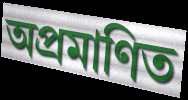
অপ্রমাণিত